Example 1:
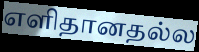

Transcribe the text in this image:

எளிதானதல்ல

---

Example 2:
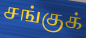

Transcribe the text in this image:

சங்குக்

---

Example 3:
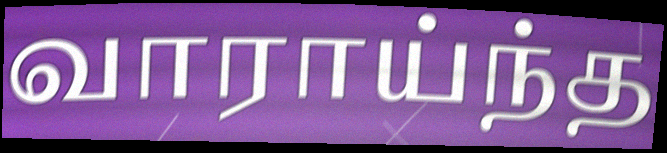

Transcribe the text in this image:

வாராய்ந்த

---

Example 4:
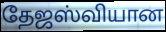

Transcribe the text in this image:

தேஜஸ்வியான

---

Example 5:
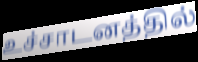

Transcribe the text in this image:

உச்சாடனத்தில்